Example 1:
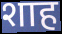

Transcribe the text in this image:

शाह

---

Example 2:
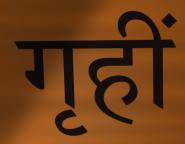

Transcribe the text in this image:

गृहीं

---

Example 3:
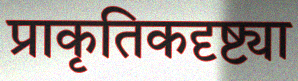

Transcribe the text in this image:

प्राकृतिकदृष्ट्या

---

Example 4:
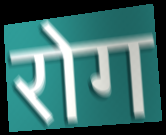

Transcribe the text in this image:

रोग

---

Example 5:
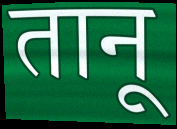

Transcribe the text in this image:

तानू